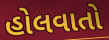
હોલવાતો